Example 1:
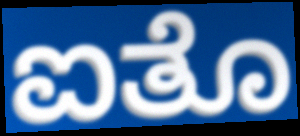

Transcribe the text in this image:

ಐತೊ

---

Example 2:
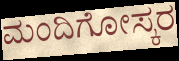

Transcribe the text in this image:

ಮಂದಿಗೋಸ್ಕರ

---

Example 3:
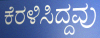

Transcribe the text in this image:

ಕೆರಳಿಸಿದ್ದವು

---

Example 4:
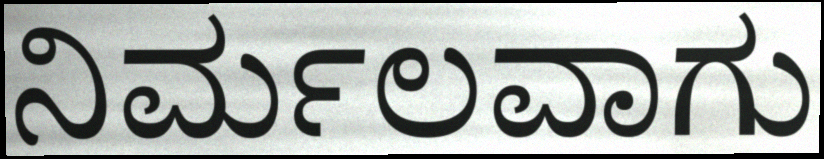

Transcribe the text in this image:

ನಿರ್ಮಲವಾಗು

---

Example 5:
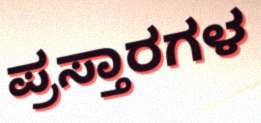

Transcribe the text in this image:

ಪ್ರಸ್ತಾರಗಳ